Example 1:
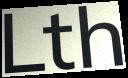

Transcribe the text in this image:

Lth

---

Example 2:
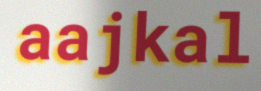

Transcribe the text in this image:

aajkal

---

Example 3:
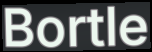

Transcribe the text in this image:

Bortle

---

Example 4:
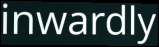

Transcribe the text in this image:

inwardly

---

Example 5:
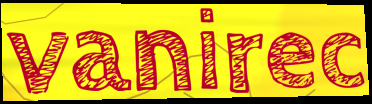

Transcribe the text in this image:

vanirec